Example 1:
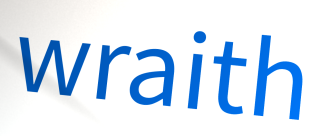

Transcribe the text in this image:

wraith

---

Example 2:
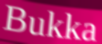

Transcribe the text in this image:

Bukka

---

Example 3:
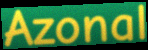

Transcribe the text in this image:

Azonal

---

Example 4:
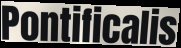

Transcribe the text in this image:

Pontificalis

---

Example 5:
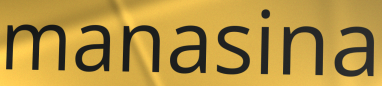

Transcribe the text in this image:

manasina